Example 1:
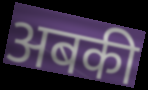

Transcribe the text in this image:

अबकी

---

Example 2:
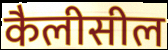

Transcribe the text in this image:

कैलीसील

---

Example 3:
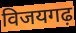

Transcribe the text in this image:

विजयगढ़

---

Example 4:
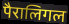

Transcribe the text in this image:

पैरालिगल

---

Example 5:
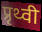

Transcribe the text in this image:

प्रृथ्वी